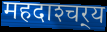
महदाश्चर्य